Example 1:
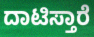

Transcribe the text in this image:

ದಾಟಿಸ್ತಾರೆ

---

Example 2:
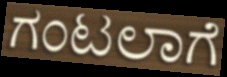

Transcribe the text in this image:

ಗಂಟಲಾಗೆ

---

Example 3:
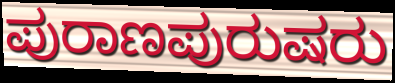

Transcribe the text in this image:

ಪುರಾಣಪುರುಷರು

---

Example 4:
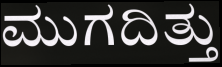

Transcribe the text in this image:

ಮುಗದಿತ್ತು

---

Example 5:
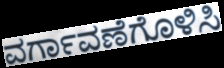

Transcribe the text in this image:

ವರ್ಗಾವಣೆಗೊಳಿಸಿ